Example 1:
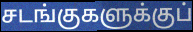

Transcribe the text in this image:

சடங்குகளுக்குப்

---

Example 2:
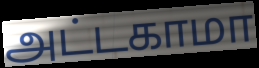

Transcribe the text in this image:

அட்டகாமா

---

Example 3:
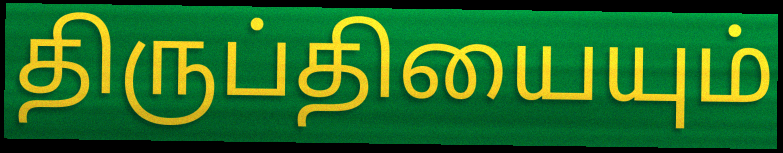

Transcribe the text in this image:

திருப்தியையும்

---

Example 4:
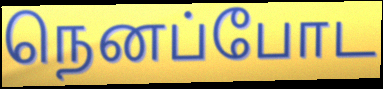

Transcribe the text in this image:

நெனப்போட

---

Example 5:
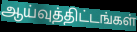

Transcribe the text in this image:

ஆய்வுத்திட்டங்கள்